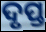
ଦୃପ୍ତ